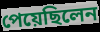
পেয়েছিলেন